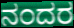
ನಂದರ